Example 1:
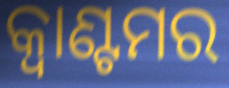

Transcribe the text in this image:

କ୍ୱାଣ୍ଟମର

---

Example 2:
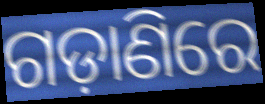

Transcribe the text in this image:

ଗଡ଼ାଣିରେ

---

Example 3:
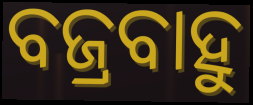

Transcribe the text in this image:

ବଜ୍ରବାହୁ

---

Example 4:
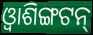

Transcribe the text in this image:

ଓ୍ୱାଶିଙ୍ଗଟନ୍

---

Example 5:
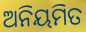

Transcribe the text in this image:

ଅନିୟମିତ